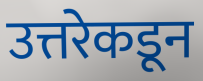
उत्तरेकडून